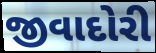
જીવાદોરી